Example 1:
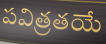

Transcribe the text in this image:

పవిత్రతయే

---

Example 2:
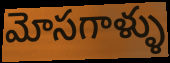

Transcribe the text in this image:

మోసగాళ్ళు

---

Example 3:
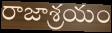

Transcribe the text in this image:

రాజాశ్రయం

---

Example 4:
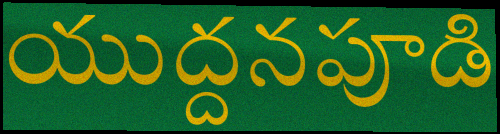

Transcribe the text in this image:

యుద్దనపూడి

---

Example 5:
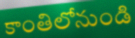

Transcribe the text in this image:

కాంతిలోనుండి